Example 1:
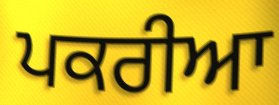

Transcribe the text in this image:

ਪਕਰੀਆ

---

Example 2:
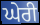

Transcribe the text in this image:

ਘੇਰੀ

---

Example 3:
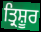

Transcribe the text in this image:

ਤ੍ਰਿਸ਼ੂਰ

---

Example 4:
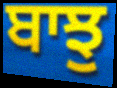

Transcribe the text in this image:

ਬਾਝੁ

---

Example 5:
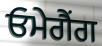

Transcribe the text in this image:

ਓਮੇਗੈਂਗ